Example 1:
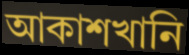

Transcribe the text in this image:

আকাশখানি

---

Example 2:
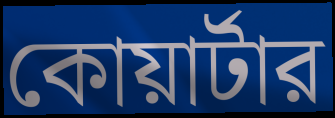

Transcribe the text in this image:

কোয়ার্টার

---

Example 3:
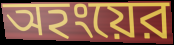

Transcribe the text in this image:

অহংয়ের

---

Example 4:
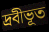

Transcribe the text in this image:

দ্রবীভূত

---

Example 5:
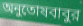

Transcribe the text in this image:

অনুতোষবাবুর